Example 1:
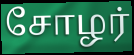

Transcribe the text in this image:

சோழர்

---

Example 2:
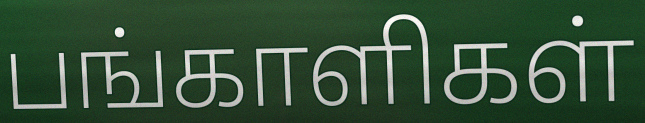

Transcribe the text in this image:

பங்காளிகள்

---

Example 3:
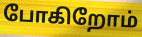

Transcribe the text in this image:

போகிறோம்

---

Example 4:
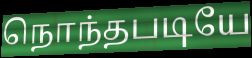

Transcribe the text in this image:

நொந்தபடியே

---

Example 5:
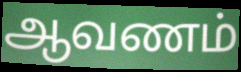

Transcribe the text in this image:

ஆவணம்